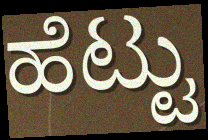
ಹೆಟ್ಟು